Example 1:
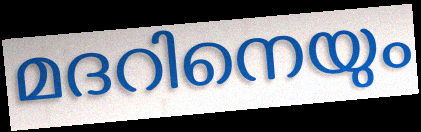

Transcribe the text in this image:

മദറിനെയും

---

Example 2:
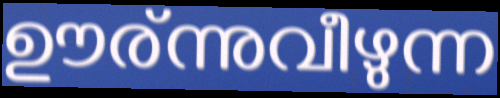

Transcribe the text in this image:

ഊര്ന്നുവീഴുന്ന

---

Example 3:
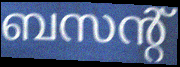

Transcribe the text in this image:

ബസന്റ്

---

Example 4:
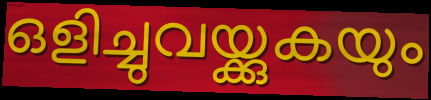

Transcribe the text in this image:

ഒളിച്ചുവയ്ക്കുകയും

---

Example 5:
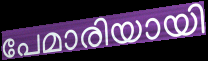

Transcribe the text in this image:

പേമാരിയായി